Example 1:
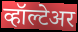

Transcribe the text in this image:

व्हॉल्टेअर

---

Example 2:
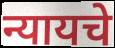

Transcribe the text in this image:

न्यायचे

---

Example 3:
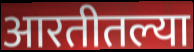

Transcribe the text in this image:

आरतीतल्या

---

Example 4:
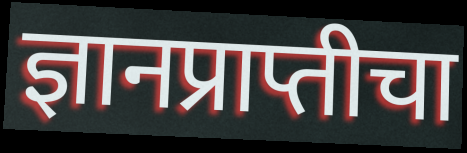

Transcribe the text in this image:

ज्ञानप्राप्तीचा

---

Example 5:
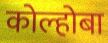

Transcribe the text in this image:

कोल्होबा